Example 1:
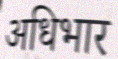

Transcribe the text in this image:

अधिभार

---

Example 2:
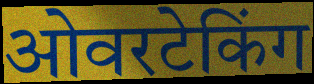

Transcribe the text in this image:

ओवरटेकिंग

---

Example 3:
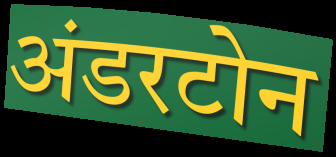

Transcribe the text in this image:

अंडरटोन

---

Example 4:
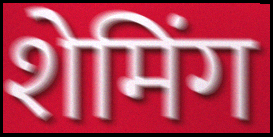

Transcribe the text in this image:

शेमिंग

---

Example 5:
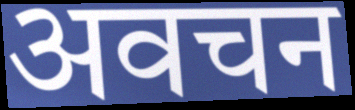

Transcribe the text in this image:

अवचन